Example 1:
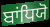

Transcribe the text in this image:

ਬਾਂਧਿਯੋ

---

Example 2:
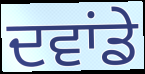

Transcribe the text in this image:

ਦਵਾਂਡੇ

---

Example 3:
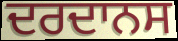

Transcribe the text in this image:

ਦਰਦਾਨਸ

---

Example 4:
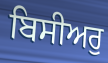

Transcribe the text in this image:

ਬਿਸੀਅਰੁ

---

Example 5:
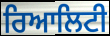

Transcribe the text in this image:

ਰਿਆਲਿਟੀ